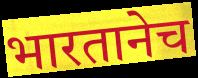
भारतानेच